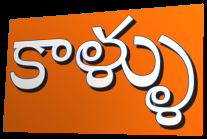
కాళ్ళు